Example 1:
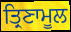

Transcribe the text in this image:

ਤ੍ਰਿਣਾਮੂਲ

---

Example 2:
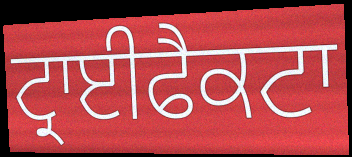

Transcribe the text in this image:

ਟ੍ਰਾਈਫੈਕਟਾ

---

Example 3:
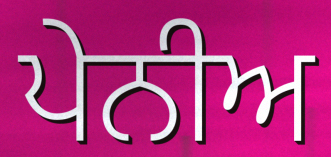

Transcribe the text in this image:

ਪੇਨੀਅ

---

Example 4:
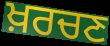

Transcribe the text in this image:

ਖ਼ਰਚਣ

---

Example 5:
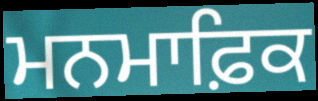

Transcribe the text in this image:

ਮਨਮਾਫ਼ਿਕ